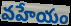
వహేయం